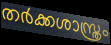
തർക്കശാസ്ത്രം